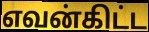
எவன்கிட்ட